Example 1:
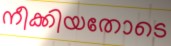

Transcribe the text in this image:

നീക്കിയതോടെ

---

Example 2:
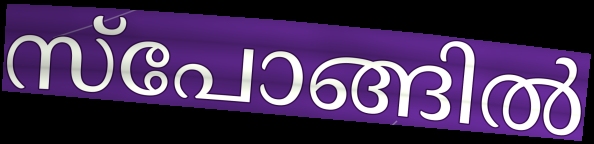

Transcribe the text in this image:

സ്പോങ്ങിൽ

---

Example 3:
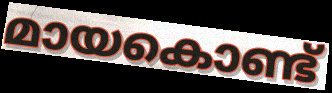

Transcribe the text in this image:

മായകൊണ്ട്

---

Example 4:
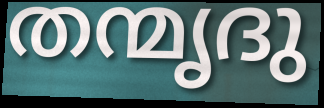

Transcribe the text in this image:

തന്മൃദു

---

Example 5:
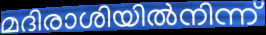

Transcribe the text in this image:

മദിരാശിയിൽനിന്ന്